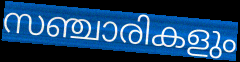
സഞ്ചാരികളും